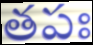
తపః